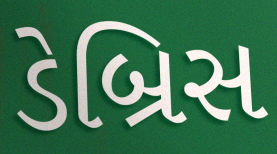
ડેબ્રિસ